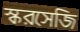
স্করসেজি